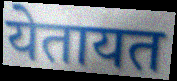
येतायत